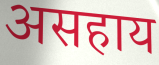
असहाय